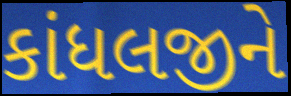
કાંધલજીને